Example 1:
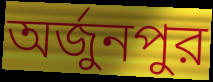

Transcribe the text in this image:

অর্জুনপুর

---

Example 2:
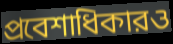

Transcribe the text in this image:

প্রবেশাধিকারও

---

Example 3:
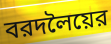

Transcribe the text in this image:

বরদলৈয়ের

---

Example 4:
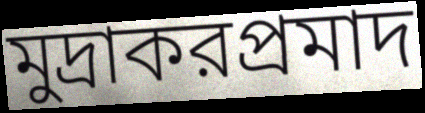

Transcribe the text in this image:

মুদ্রাকরপ্রমাদ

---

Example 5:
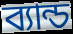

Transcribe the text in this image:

ব্যান্ড